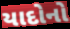
યાદોનો